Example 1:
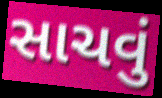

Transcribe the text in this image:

સાચવું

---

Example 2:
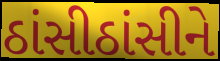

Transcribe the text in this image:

ઠાંસીઠાંસીને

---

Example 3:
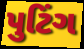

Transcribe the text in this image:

પુટિંગ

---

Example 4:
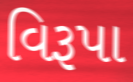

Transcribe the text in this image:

વિરૂપા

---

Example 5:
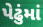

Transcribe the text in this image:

પેઢુંમાં